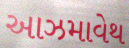
આઝમાવેથ